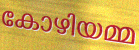
കോഴിയമ്മ